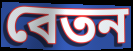
বেতন